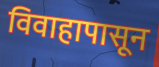
विवाहापासून